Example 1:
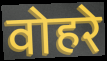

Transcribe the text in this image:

वोहरे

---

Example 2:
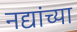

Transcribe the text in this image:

नद्यांच्या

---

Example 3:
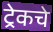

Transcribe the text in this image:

ट्रेकचे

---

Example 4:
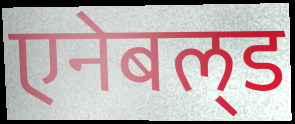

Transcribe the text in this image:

एनेबल्ड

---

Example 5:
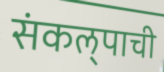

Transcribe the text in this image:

संकल्पाची